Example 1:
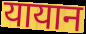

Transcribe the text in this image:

यायान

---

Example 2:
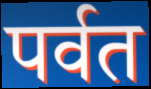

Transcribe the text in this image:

पर्वत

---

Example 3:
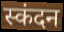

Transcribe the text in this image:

स्कंदन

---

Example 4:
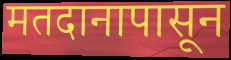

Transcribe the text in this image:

मतदानापासून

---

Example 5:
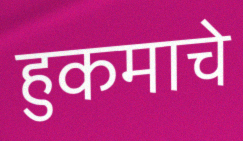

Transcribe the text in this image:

हुकमाचे